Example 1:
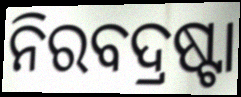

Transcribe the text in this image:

ନିରବଦ୍ରଷ୍ଟା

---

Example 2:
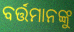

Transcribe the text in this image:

ବର୍ତ୍ତମାନଙ୍କୁ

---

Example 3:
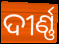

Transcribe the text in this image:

ଦୀର୍ଣ୍ଣ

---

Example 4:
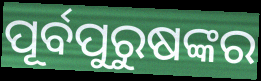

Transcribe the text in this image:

ପୂର୍ବପୁରୁଷଙ୍କର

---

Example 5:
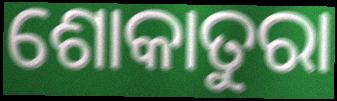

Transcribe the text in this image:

ଶୋକାତୁରା